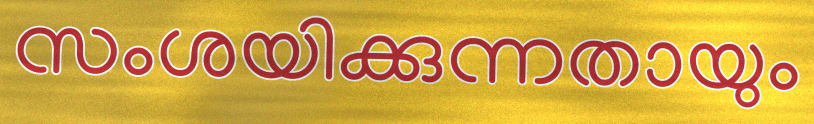
സംശയിക്കുന്നതായും